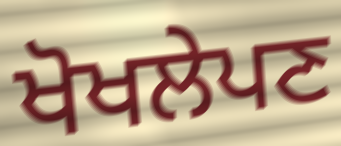
ਖੋਖਲੇਪਣ